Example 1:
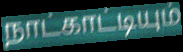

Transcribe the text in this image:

நாட்காட்டியும்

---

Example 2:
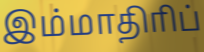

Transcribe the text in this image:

இம்மாதிரிப்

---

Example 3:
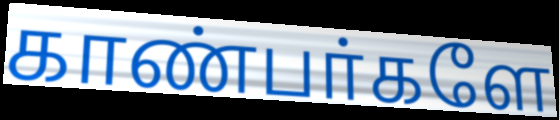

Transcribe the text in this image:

காண்பர்களே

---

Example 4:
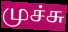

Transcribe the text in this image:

முச்சு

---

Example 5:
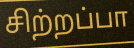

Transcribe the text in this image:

சிற்றப்பா